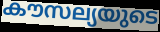
കൗസല്യയുടെ